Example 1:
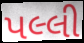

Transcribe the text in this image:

પલ્લી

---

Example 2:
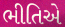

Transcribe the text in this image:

ભીતિએ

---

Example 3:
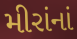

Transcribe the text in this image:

મીરાંનાં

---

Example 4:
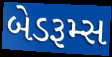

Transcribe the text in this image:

બેડરૂમ્સ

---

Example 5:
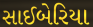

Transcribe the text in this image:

સાઈબેરિયા